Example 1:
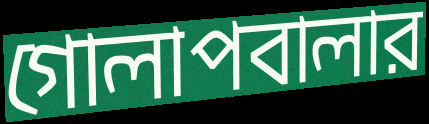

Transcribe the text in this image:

গোলাপবালার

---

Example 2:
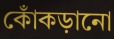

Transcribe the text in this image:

কোঁকড়ানো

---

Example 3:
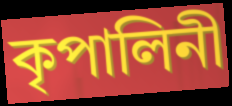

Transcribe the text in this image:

কৃপালিনী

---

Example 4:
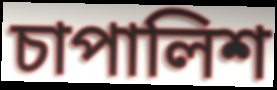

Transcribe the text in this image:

চাপালিশ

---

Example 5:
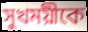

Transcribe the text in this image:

সুখময়ীকে